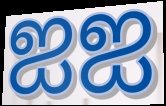
ஐஐ